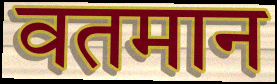
वतमान